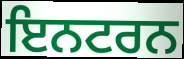
ਇਨਟਰਨ